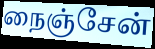
நைஞ்சேன்